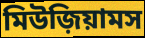
মিউজ়িয়ামস